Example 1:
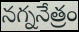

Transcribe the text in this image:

నగ్ననేత్రం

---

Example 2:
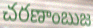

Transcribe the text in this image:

చరణాంబుజ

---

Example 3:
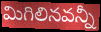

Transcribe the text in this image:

మిగిలినవన్నీ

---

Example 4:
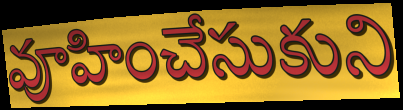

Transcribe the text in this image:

వూహించేసుకుని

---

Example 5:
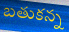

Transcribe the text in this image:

బతుకన్న